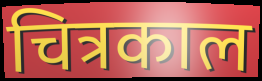
चित्रकाल